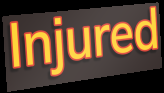
Injured